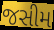
જસીમ